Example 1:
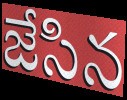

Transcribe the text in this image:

జేసిన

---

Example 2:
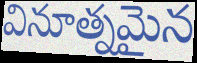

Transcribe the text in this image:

వినూత్నమైన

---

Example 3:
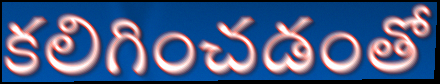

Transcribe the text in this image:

కలిగించడంతో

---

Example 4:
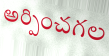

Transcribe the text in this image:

అర్పించగల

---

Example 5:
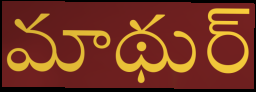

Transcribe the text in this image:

మాథుర్